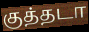
குத்தடா